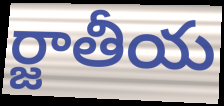
ర్జాతీయ